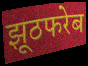
झूठफरेब